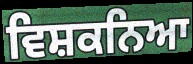
ਵਿਸ਼ਕਨਿਆ